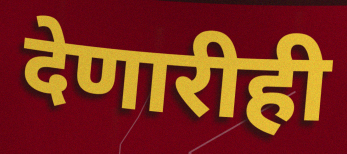
देणारीही